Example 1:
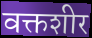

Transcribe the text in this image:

वक्तशीर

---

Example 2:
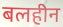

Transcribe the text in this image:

बलहीन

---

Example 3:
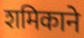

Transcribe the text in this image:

शमिकाने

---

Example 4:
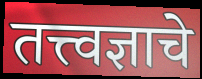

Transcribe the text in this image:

तत्त्वज्ञाचे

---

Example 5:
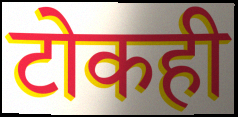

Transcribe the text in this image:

टोकही